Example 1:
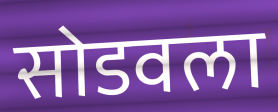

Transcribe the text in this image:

सोडवला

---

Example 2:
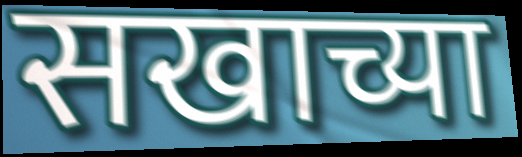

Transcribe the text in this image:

सखाच्या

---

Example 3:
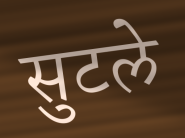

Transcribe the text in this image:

सुटले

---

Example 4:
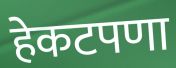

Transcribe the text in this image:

हेकटपणा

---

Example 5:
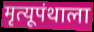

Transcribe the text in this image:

मृत्यूपंथाला